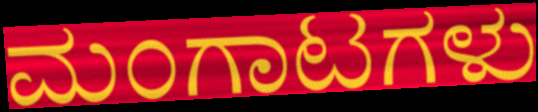
ಮಂಗಾಟಗಳು